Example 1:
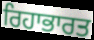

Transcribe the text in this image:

ਰਿਹਾਭਾਰਤ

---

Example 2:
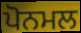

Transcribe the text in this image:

ਪੋਨਮਲ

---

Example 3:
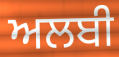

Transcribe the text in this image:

ਅਲਬੀ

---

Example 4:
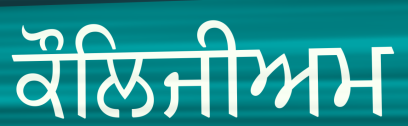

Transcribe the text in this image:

ਕੌਲਿਜੀਅਮ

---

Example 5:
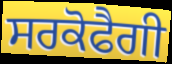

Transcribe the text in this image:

ਸਰਕੋਫੈਗੀ